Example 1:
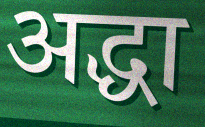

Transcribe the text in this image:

अद्धा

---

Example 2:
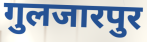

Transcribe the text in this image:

गुलजारपुर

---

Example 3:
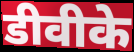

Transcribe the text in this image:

डीवीके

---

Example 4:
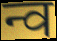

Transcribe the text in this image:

न्व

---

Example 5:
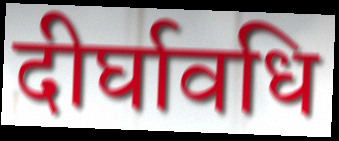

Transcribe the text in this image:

दीर्घावधि